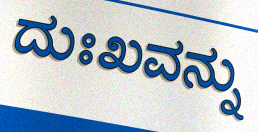
ದುಃಖವನ್ನು